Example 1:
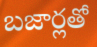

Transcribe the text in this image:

బజార్లతో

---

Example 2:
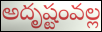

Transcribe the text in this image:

అదృష్టంవల్ల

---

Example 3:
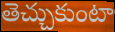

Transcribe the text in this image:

తెచ్చుకుంటా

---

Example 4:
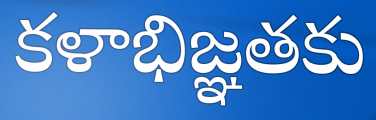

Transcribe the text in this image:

కళాభిజ్ఞతకు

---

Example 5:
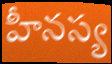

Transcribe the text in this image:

హీనస్య